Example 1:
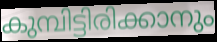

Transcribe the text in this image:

കുമ്പിട്ടിരിക്കാനും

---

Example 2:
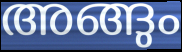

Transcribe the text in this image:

അങ്ങും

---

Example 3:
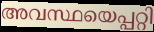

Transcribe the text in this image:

അവസ്ഥയെപ്പറ്റി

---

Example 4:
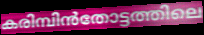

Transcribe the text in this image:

കരിമ്പിൻതോട്ടത്തിലെ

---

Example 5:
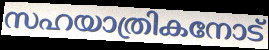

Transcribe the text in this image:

സഹയാത്രികനോട്